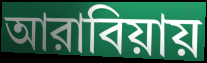
আরাবিয়ায়